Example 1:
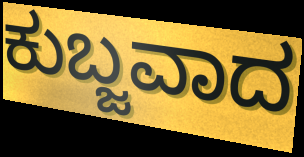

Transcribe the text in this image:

ಕುಬ್ಜವಾದ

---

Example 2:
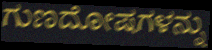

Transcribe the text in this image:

ಗುಣದೋಷಗಳನ್ನು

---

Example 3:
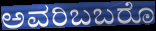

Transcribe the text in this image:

ಅವರಿಬಬರೊ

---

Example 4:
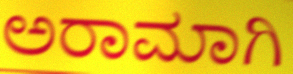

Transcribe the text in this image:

ಅರಾಮಾಗಿ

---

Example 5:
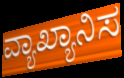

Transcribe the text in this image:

ವ್ಯಾಖ್ಯಾನಿಸ